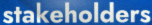
stakeholders